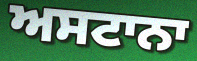
ਅਸਟਾਨਾ